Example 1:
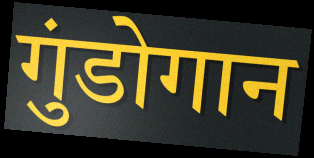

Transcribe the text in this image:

गुंडोगान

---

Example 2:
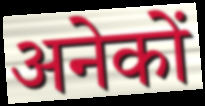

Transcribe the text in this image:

अनेकों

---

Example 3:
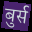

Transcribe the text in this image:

बुर्स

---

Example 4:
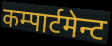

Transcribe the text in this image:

कम्पार्टमेन्ट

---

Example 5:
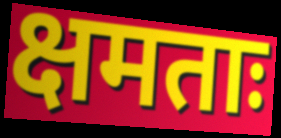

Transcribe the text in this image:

क्षमताः